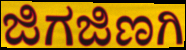
ಜಿಗಜಿಣಗಿ